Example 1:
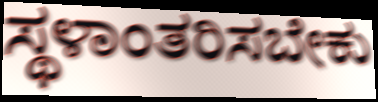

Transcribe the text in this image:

ಸ್ಥಳಾಂತರಿಸಬೇಕು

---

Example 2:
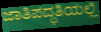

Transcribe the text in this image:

ಜಾತಿಪದ್ಧತಿಯಲ್ಲಿ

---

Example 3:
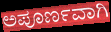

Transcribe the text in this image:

ಅಪೂರ್ಣವಾಗಿ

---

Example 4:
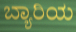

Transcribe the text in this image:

ಬ್ಯಾರಿಯ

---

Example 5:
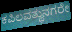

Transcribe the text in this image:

ಕಪಿಲವತ್ಥುನಗರೇ